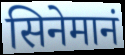
सिनेमानं